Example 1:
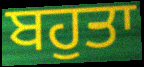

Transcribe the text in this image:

ਬਹੁਤਾ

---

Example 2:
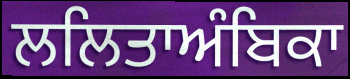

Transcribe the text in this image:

ਲਲਿਤਾਅੰਬਿਕਾ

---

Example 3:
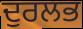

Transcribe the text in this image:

ਦੁਰਲਭ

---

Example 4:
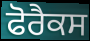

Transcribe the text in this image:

ਫੋਰੈਕਸ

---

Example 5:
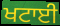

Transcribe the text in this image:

ਖਟਾਈ